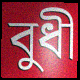
বুধী